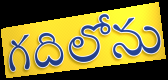
గదిలోను